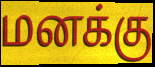
மனக்கு